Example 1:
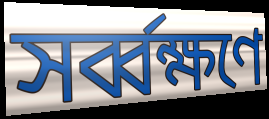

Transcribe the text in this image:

সর্ব্বক্ষণে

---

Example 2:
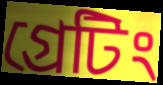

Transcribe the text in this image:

গ্রেটিং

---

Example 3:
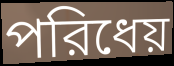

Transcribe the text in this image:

পরিধেয়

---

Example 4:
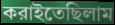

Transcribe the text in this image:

করাইতেছিলাম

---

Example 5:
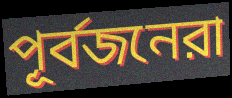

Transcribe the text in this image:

পূর্বজনেরা